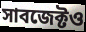
সাবজেক্টও